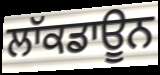
ਲਾੱਕਡਾਊਨ